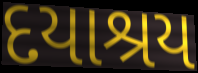
દયાશ્રય